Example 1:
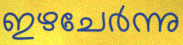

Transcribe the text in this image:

ഇഴചേർന്നു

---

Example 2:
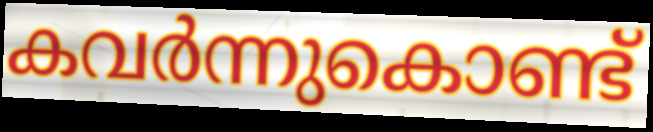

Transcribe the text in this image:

കവർന്നുകൊണ്ട്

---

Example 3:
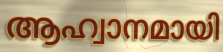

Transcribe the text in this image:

ആഹ്വാനമായി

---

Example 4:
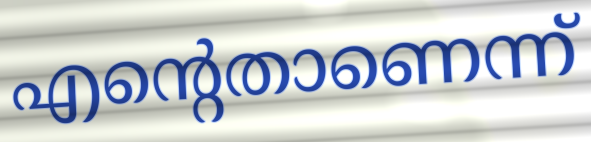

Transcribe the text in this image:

എന്റെതാണെന്ന്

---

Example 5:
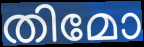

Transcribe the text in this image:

തിമോ